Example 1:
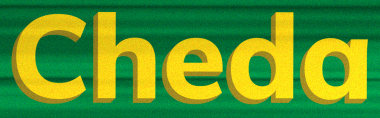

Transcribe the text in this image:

Cheda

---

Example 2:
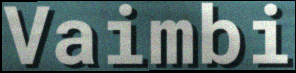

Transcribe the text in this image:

Vaimbi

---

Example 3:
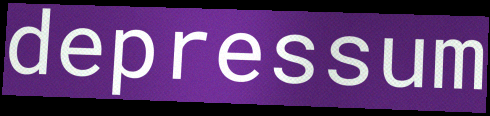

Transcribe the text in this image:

depressum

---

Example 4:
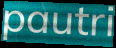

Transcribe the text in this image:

pautri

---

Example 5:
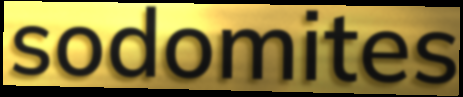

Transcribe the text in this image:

sodomites